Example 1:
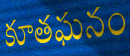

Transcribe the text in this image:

కూతఘనం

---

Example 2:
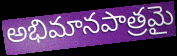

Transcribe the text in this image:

అభిమానపాత్రమై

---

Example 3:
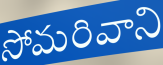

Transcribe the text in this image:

సోమరివాని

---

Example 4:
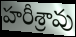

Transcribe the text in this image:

హరీశ్రావు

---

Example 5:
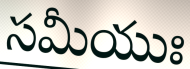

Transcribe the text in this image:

సమీయుః